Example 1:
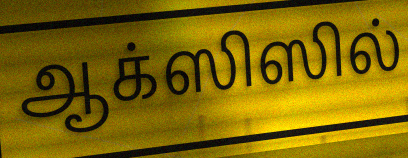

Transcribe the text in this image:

ஆக்ஸிஸில்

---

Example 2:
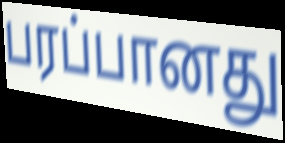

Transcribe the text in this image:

பரப்பானது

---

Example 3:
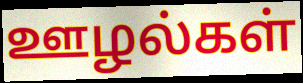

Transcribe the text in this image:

ஊழல்கள்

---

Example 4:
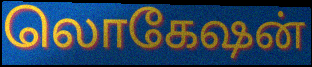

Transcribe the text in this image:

லொகேஷன்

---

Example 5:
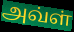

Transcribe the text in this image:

அவ்ள்